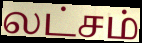
லட்சம்